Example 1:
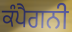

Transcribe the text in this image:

ਕੰਪੈਗਨੀ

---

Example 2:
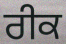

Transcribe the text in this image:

ਰੀਕ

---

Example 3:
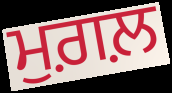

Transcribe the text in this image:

ਮੁਗ਼ਲ਼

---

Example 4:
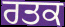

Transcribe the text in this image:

ਰਤਕ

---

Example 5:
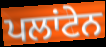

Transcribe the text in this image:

ਪਲਾਂਟੇਨ